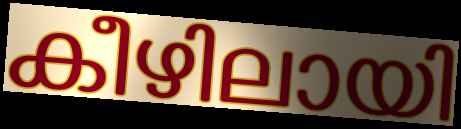
കീഴിലായി